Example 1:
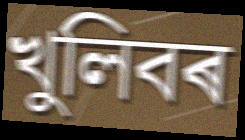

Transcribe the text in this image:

খুলিবৰ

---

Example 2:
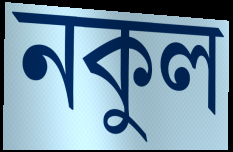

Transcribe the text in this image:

নকুল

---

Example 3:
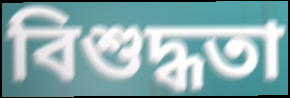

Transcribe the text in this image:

বিশুদ্ধতা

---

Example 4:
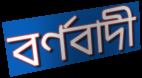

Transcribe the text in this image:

বৰ্ণবাদী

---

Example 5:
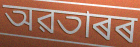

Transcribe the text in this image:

অৱতাৰৰ